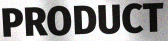
PRODUCT